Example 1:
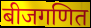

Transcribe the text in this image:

बीजगणित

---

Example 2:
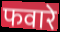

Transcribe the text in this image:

फवारे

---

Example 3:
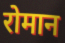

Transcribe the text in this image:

रोमान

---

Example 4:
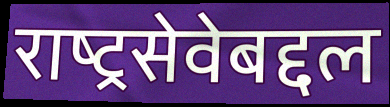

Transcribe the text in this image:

राष्ट्रसेवेबद्दल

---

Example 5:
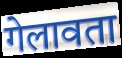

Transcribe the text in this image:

गेलावता